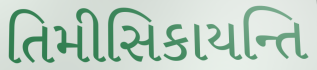
તિમીસિકાયન્તિ